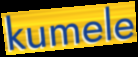
kumele